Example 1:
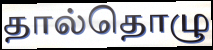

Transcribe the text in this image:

தால்தொழு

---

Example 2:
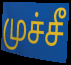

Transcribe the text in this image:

முச்சீ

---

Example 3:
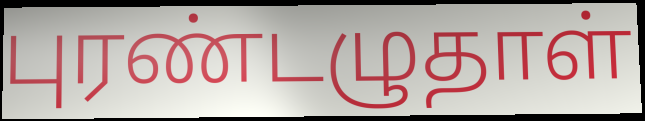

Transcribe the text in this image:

புரண்டழுதாள்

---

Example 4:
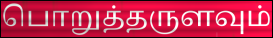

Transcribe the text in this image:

பொறுத்தருளவும்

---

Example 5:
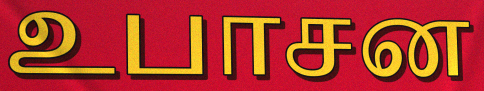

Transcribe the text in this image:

உபாசன